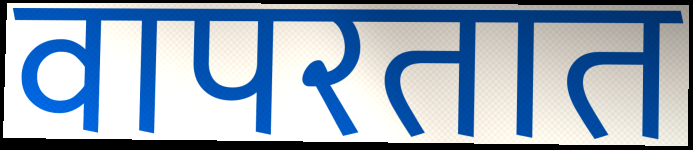
वापरतात